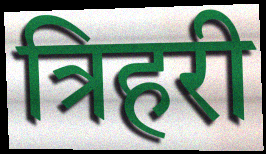
त्रिहरी